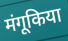
मंगूकिया